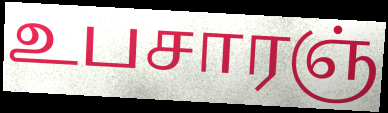
உபசாரஞ்